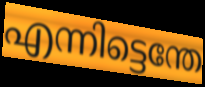
എന്നിട്ടെന്തേ